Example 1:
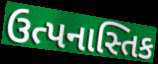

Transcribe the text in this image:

ઉત્પનાસ્તિક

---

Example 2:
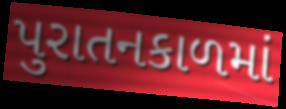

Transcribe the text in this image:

પુરાતનકાળમાં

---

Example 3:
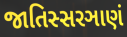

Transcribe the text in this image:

જાતિસ્સરઞાણં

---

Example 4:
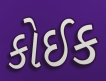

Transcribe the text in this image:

કોઈક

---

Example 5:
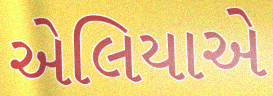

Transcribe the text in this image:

એલિયાએ